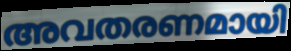
അവതരണമായി